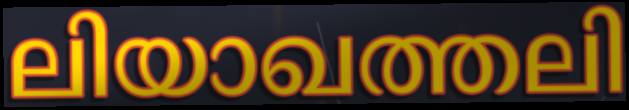
ലിയാഖത്തലി